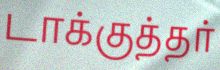
டாக்குத்தர்